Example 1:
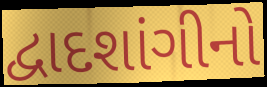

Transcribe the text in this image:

દ્વાદશાંગીનો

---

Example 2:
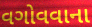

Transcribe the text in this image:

વગોવવાના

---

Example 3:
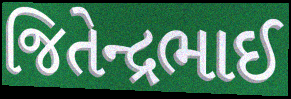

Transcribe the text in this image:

જિતેન્દ્રભાઈ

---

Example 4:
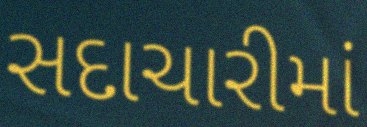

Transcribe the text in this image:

સદાચારીમાં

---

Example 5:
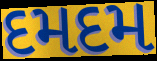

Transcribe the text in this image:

દમદમ